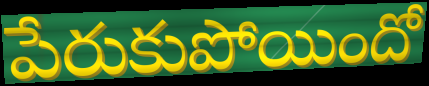
పేరుకుపోయిందో